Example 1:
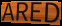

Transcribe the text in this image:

ARED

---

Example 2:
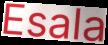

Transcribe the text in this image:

Esala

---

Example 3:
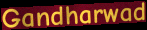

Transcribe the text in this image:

Gandharwad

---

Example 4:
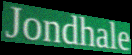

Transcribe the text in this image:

Jondhale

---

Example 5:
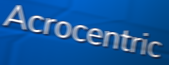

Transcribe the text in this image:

Acrocentric